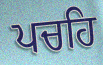
ਪਚਹਿ